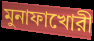
মুনাফাখোরী